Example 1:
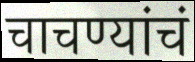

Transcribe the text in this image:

चाचण्यांचं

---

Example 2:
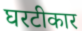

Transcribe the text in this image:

घरटीकार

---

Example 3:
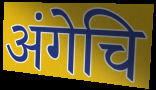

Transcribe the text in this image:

अंगेचि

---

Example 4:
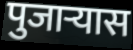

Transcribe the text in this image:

पुजाऱ्यास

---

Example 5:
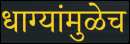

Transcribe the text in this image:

धाग्यांमुळेच